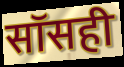
सॉसही